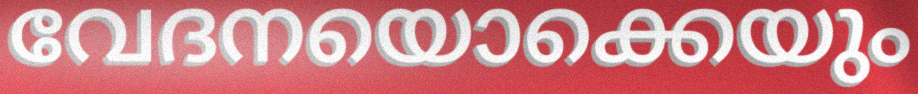
വേദനയൊക്കെയും